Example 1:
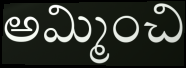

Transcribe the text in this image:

అమ్మించి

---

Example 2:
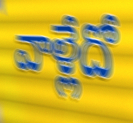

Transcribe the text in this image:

వాళ్లేదో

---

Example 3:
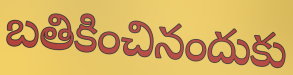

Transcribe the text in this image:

బతికించినందుకు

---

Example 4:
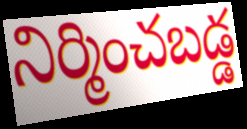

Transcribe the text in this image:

నిర్మించబడ్డ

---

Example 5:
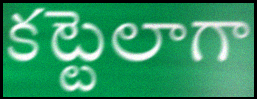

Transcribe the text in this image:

కట్టెలాగా